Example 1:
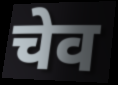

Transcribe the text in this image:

चेव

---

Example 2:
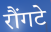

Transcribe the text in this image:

रौंगटे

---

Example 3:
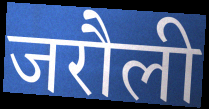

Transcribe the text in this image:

जरौली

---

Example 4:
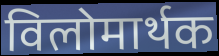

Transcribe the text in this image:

विलोमार्थक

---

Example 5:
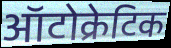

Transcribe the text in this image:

ऑटोक्रेटिक